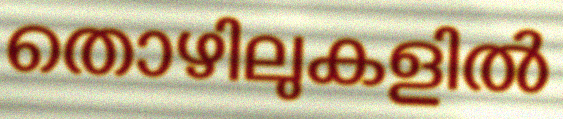
തൊഴിലുകളിൽ